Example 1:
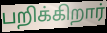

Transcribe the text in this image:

பறிக்கிறார்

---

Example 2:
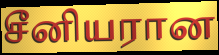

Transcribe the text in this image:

சீனியரான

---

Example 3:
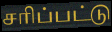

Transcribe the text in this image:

சரிப்பட்டு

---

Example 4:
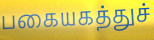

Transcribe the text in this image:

பகையகத்துச்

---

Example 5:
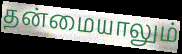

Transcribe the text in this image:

தன்மையாலும்